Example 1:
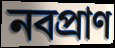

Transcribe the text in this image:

নবপ্রাণ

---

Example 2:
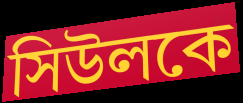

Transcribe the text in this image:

সিউলকে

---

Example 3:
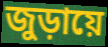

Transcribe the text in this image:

জুড়ায়ে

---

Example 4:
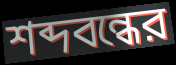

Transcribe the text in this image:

শব্দবন্ধের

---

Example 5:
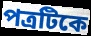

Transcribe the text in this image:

পত্রটিকে